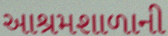
આશ્રમશાળાની